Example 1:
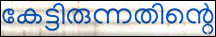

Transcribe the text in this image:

കേട്ടിരുന്നതിന്റെ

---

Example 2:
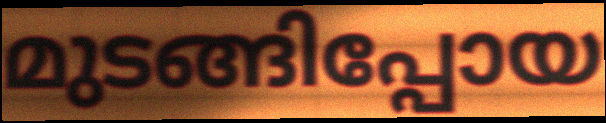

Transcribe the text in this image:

മുടങ്ങിപ്പോയ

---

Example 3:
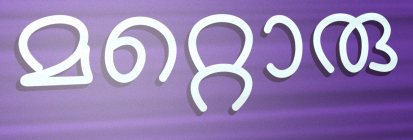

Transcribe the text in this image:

മറ്റൊരു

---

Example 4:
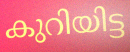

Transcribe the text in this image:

കുറിയിട്ട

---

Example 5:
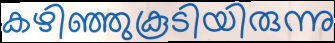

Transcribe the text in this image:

കഴിഞ്ഞുകൂടിയിരുന്നു